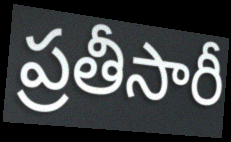
ప్రతీసారీ